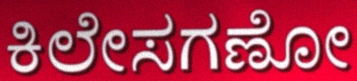
ಕಿಲೇಸಗಣೋ